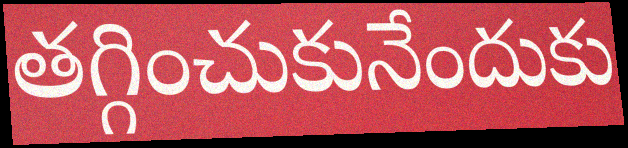
తగ్గించుకునేందుకు